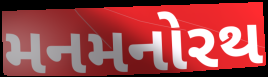
મનમનોરથ